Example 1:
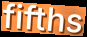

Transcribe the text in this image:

fifths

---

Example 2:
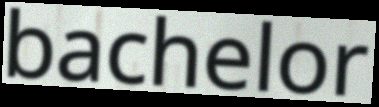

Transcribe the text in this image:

bachelor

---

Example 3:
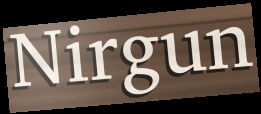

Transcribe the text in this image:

Nirgun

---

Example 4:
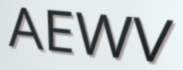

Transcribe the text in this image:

AEWV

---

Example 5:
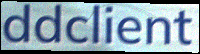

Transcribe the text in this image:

ddclient